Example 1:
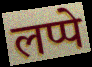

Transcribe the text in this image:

लप्पे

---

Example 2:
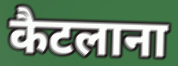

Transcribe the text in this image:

कैटलाना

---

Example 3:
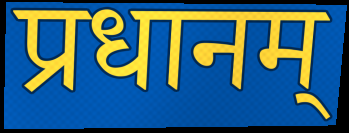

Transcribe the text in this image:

प्रधानम्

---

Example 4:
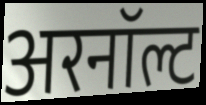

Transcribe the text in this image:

अरनॉल्ट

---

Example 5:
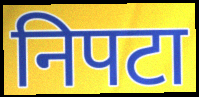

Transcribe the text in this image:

निपटा